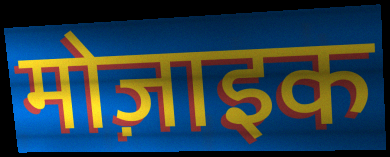
मोज़ाइक